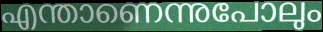
എന്താണെന്നുപോലും